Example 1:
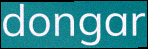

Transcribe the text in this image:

dongar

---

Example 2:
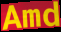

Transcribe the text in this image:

Amd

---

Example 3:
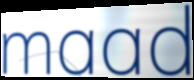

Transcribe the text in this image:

maad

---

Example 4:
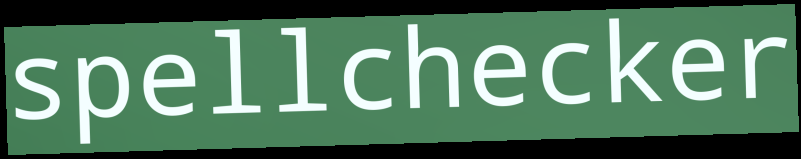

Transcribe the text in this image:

spellchecker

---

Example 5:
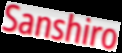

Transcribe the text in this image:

Sanshiro